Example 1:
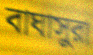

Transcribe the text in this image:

বাঘাসুরা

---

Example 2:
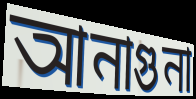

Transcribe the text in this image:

আনাগুনা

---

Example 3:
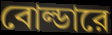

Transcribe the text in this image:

বোল্ডারে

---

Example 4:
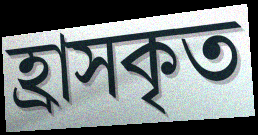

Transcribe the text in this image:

হ্রাসকৃত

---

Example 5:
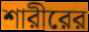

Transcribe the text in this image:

শারীরের